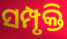
ସମ୍ପୃକ୍ତି